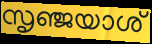
സൃഞ്ജയാശ്